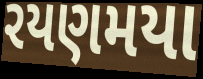
રયણમયા